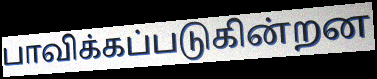
பாவிக்கப்படுகின்றன